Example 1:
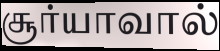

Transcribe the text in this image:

சூர்யாவால்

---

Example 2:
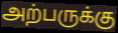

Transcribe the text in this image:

அற்பருக்கு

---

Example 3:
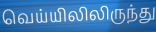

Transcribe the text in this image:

வெய்யிலிலிருந்து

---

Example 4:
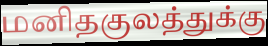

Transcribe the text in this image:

மனிதகுலத்துக்கு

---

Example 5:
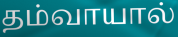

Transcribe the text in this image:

தம்வாயால்